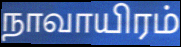
நாவாயிரம்